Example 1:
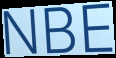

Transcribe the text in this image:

NBE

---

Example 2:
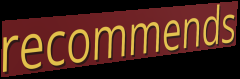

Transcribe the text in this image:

recommends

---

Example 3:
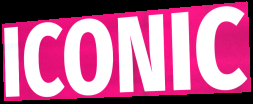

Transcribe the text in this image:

ICONIC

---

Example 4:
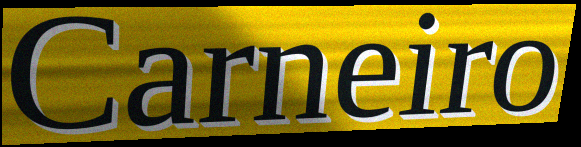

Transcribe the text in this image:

Carneiro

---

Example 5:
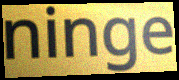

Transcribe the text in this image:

ninge